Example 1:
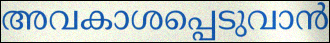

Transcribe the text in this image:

അവകാശപ്പെടുവാൻ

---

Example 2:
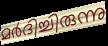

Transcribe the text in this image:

മർദിച്ചിരുന്നു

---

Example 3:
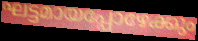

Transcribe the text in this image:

ഘട്ടമായപ്പോഴേക്കും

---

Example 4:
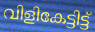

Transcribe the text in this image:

വിളികേട്ടിട്ട്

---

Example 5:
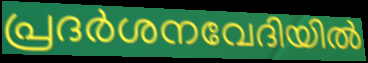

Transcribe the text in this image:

പ്രദർശനവേദിയിൽ